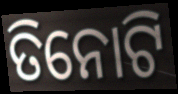
ତିନୋଟି